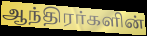
ஆந்திரர்களின்